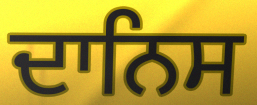
ਦਾਨਿਸ